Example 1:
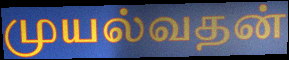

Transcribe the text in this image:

முயல்வதன்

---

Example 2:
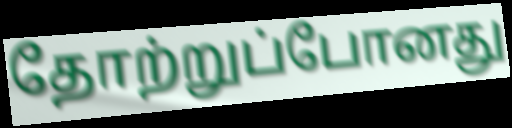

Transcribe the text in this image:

தோற்றுப்போனது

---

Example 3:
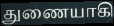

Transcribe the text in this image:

துணையாகி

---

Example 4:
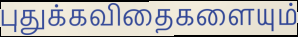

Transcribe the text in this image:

புதுக்கவிதைகளையும்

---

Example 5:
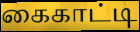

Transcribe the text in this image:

கைகாட்டி